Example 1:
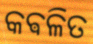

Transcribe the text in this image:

କଵଳିତ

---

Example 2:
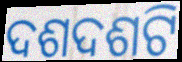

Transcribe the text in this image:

ଦଶଦଶଟି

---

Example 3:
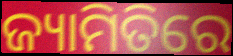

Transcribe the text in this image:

ଜ୍ୟାମିତିରେ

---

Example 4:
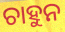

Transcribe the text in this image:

ଚାହୁନ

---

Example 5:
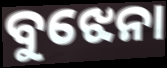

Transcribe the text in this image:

ବୁଝେନା